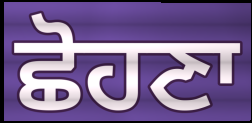
ਛੋਹਣਾ